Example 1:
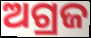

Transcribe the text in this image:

ଅଗ୍ରଜ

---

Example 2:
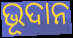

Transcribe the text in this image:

ଭୂଦାନ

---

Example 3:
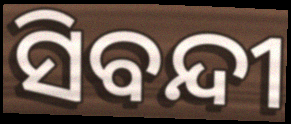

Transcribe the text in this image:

ସିବନ୍ଦୀ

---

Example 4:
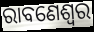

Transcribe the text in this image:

ରାବଣେଶ୍ୱର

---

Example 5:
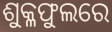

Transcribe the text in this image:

ଶୁକ୍ଳଫୁଲରେ